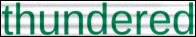
thundered